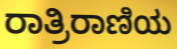
ರಾತ್ರಿರಾಣಿಯ